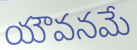
యౌవనమే